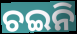
ଚଇନି